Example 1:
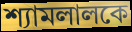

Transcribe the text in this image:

শ্যামলালকে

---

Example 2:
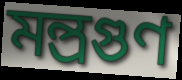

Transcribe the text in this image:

মন্ত্রগুণ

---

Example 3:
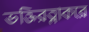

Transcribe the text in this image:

ভক্তিরত্নাকরে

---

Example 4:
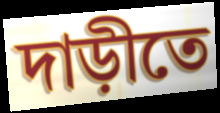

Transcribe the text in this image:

দাড়ীতে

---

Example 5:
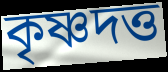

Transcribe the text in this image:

কৃষ্ণদত্ত